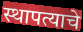
स्थापत्याचे